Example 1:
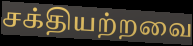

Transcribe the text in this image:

சக்தியற்றவை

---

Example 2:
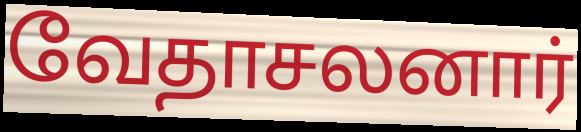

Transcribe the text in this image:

வேதாசலனார்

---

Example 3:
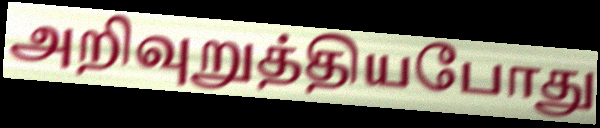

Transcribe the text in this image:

அறிவுறுத்தியபோது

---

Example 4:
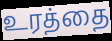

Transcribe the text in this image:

உரத்தை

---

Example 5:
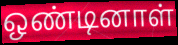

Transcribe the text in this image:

ஒண்டினாள்